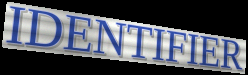
IDENTIFIER